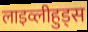
लाइव्लीहुड्स